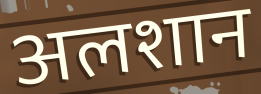
अलशान